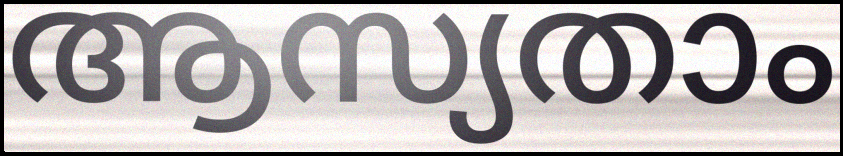
ആസ്യതാം